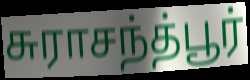
சுராசந்த்பூர்